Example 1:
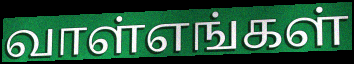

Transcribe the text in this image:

வாள்எங்கள்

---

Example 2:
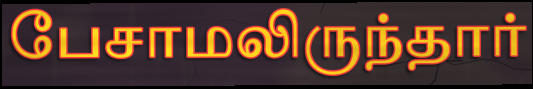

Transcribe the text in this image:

பேசாமலிருந்தார்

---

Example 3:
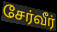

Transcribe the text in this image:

சேர்வீர்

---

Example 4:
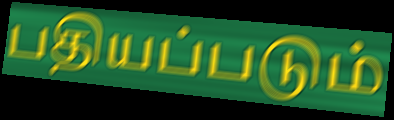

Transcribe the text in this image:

பதியப்படும்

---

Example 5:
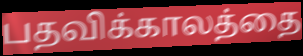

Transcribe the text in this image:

பதவிக்காலத்தை